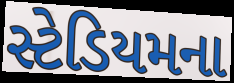
સ્ટેડિયમના